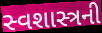
સ્વશાસ્ત્રની